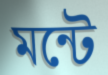
মন্টে